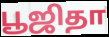
பூஜிதா